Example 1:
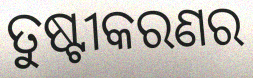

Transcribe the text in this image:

ତୁଷ୍ଟୀକରଣର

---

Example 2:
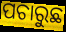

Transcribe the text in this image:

ପଚାରୁଛ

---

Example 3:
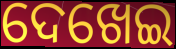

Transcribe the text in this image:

ଦେଖେଇ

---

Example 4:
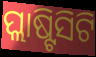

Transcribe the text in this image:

ପ୍ଲାଷ୍ଟିସିଟି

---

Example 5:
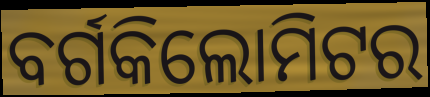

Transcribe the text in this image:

ବର୍ଗକିଲୋମିଟର